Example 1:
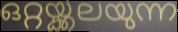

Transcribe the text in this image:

ഒറ്റയ്ക്കലയുന്ന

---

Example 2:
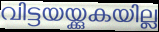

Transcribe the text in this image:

വിട്ടയയ്ക്കുകയില്ല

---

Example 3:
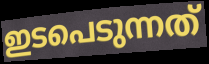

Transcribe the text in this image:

ഇടപെടുന്നത്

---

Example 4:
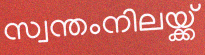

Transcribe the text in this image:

സ്വന്തംനിലയ്ക്ക്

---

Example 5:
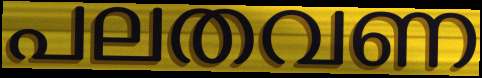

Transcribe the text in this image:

പലതവണ